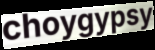
choygypsy